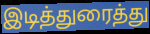
இடித்துரைத்து